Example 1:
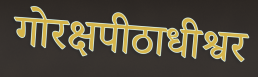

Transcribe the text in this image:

गोरक्षपीठाधीश्वर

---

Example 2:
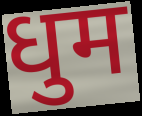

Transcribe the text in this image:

धुम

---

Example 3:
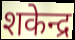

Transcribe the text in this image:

शकेन्द्र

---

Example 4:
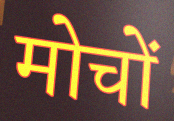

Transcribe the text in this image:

मोचों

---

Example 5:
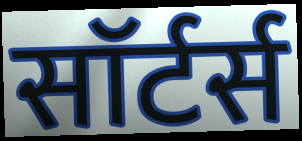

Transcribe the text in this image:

सॉर्टर्स